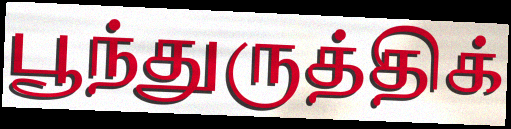
பூந்துருத்திக்